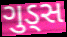
ગુડ્સ